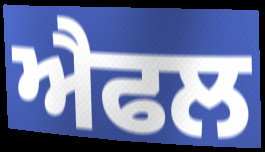
ਐਫਲ